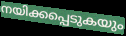
നയിക്കപ്പെടുകയും